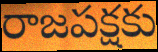
రాజపక్షకు